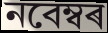
নবেম্বৰ